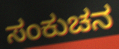
ಸಂಕುಚನ